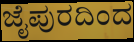
ಜೈಪುರದಿಂದ